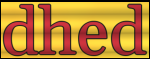
dhed